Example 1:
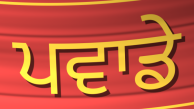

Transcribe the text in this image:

ਪਵਾਡੇ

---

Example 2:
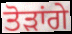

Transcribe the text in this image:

ਤੋੜਾਂਗੇ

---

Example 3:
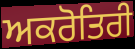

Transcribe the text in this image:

ਅਕਰੋਤਿਰੀ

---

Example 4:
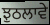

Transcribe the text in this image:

ਝੁਠਲਾਵੇ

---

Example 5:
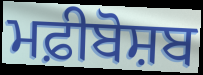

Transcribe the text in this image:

ਮਫ਼ੀਬੋਸ਼ਬ